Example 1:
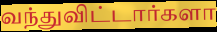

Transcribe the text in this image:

வந்துவிட்டார்களா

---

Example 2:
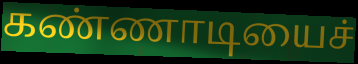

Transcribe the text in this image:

கண்ணாடியைச்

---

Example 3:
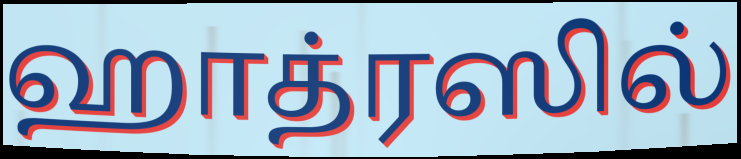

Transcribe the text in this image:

ஹாத்ரஸில்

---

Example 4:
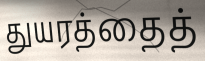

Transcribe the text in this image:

துயரத்தைத்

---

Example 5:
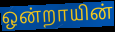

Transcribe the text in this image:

ஒன்றாயின்